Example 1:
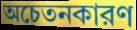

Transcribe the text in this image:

অচেতনকারণ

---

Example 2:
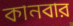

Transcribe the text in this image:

কানবার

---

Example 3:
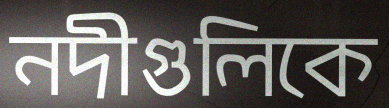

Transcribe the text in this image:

নদীগুলিকে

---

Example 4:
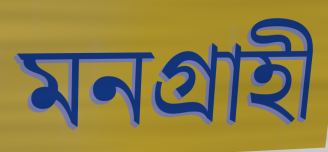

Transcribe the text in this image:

মনগ্রাহী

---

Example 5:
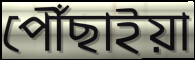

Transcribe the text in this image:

পৌঁছাইয়া